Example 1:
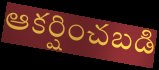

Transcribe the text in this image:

ఆకర్షించబడి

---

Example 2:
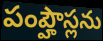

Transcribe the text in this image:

పంప్హౌస్లను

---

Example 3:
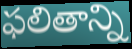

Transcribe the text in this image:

ఫలితాన్ని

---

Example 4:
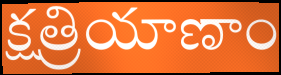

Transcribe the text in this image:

క్షత్రియాణాం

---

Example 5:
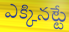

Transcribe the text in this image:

ఎక్కినట్టే